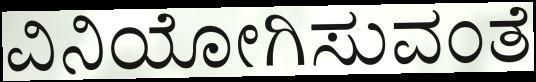
ವಿನಿಯೋಗಿಸುವಂತೆ